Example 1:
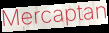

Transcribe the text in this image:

Mercaptan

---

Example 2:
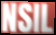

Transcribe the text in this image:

NSIL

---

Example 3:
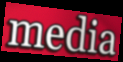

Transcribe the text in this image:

media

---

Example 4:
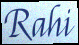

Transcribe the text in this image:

Rahi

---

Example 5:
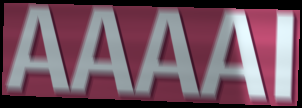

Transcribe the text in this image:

AAAAI